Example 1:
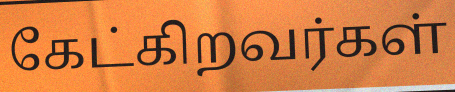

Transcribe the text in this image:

கேட்கிறவர்கள்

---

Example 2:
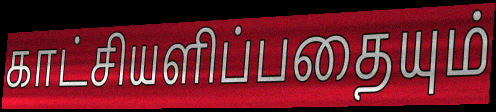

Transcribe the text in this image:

காட்சியளிப்பதையும்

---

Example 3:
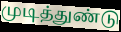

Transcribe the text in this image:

முடித்துண்டு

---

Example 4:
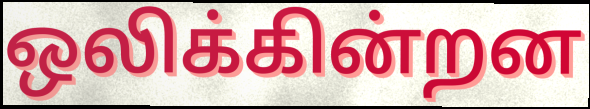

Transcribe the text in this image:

ஒலிக்கின்றன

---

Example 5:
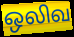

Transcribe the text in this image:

ஒலிவ